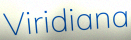
Viridiana